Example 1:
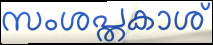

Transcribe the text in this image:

സംശപ്തകാശ്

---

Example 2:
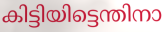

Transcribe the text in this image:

കിട്ടിയിട്ടെന്തിനാ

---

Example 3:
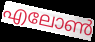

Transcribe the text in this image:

എലോൺ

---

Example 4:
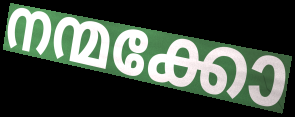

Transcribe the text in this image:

നന്മക്കോ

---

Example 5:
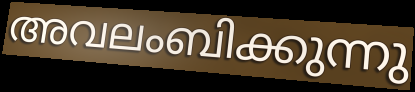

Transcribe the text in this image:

അവലംബിക്കുന്നു